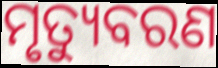
ମୃତ୍ୟୁବରଣ